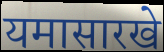
यमासारखे